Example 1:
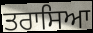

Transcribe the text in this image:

ਤਰਾਸਿਆ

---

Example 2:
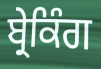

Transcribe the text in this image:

ਬ੍ਰੇਕਿੰਗ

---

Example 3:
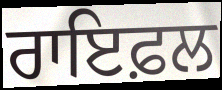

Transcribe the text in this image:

ਰਾਇਫ਼ਲ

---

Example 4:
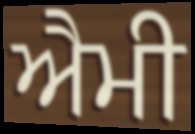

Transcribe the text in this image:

ਐਮੀ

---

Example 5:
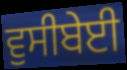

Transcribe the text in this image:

ਵੁਸੀਬੇਈ